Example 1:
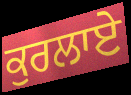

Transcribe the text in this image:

ਕੁਰਲਾਏ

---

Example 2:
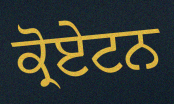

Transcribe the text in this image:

ਕ੍ਰੋਏਟਨ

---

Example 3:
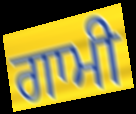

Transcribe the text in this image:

ਗਾਮੀ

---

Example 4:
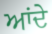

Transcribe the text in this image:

ਆਂਦੇ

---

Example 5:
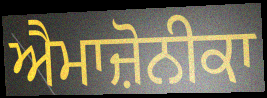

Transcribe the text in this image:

ਐਮਾਜ਼ੋਨੀਕਾ